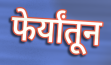
फेर्यांतून